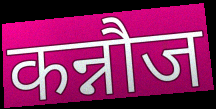
कन्नौज